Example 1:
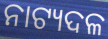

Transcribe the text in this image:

ନାଟ୍ୟଦଳ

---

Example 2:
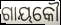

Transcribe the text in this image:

ଗାୟକୌ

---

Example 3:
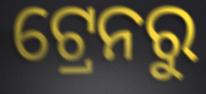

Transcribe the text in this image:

ଟ୍ରେନରୁ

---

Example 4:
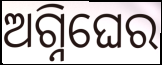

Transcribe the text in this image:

ଅଗ୍ନିଘେର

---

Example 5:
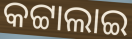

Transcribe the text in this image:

କଟ୍ଟାଲାଇ